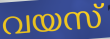
വയസ്